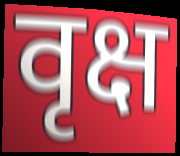
वृक्ष